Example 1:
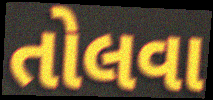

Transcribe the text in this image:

તોલવા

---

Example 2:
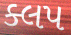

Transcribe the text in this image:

ક્લપ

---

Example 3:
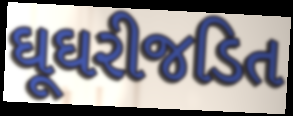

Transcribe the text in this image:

ઘૂઘરીજડિત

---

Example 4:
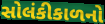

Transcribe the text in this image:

સોલંકીકાળનો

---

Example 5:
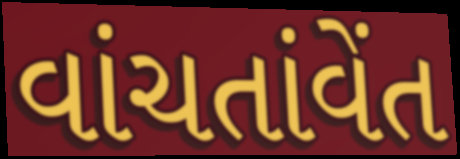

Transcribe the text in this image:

વાંચતાંવેંત